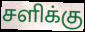
சளிக்கு